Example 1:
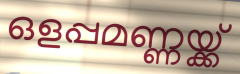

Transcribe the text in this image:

ഒളപ്പമണ്ണയ്ക്ക്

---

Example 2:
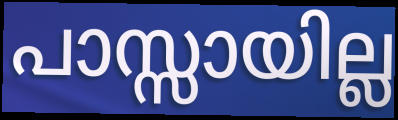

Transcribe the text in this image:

പാസ്സായില്ല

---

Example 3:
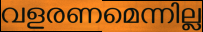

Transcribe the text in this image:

വളരണമെന്നില്ല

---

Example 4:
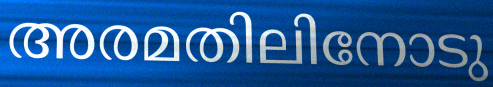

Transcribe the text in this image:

അരമതിലിനോടു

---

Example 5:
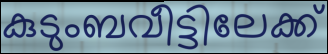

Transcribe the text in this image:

കുടുംബവീട്ടിലേക്ക്